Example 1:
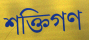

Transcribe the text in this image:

শক্তিগণ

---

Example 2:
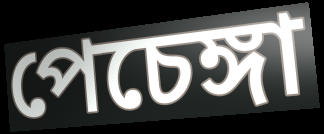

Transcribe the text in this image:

পেচেঙ্গা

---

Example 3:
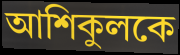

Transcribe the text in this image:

আশিকুলকে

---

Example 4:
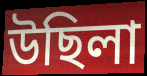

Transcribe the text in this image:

উছিলা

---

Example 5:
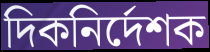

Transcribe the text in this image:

দিকনির্দেশক